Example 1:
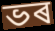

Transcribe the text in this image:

ভৰ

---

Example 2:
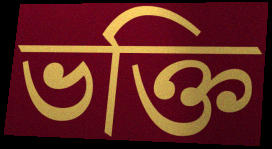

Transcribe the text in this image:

ভক্তি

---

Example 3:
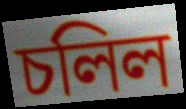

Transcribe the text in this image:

চলিল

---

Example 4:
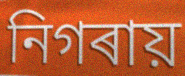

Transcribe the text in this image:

নিগৰায়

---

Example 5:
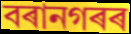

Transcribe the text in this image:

বৰানগৰৰ